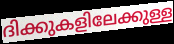
ദിക്കുകളിലേക്കുള്ള